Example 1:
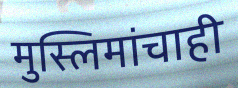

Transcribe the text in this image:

मुस्लिमांचाही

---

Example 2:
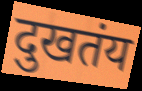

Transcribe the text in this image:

दुखतंय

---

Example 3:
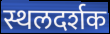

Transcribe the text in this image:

स्थलदर्शक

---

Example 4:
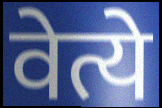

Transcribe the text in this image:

वेत्ये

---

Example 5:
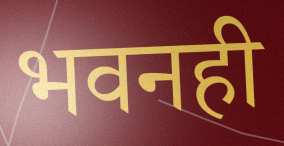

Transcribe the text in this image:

भवनही